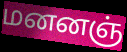
மனனஞ்